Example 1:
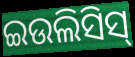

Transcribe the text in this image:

ଇଉଲିସିସ୍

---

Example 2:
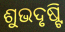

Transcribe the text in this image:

ଶୁଭଦୃଷ୍ଟି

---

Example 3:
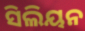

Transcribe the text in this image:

ସିଲିୟନ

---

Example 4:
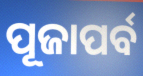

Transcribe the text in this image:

ପୂଜାପର୍ବ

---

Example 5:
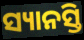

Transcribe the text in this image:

ସ୍ୟାନସ୍ତି